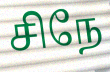
சிநே